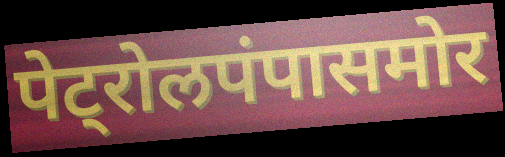
पेट्रोलपंपासमोर